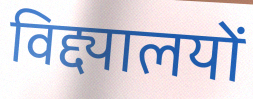
विद्द्यालयों